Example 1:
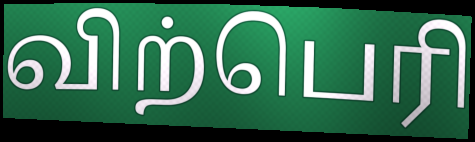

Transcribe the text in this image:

விற்பெரி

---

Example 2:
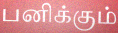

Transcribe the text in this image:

பனிக்கும்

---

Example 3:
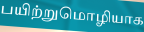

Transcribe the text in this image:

பயிற்றுமொழியாக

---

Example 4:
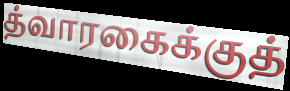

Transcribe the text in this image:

த்வாரகைக்குத்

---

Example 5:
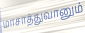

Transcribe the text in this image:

மாசாத்துவானும்